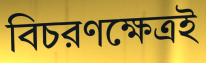
বিচরণক্ষেত্রই